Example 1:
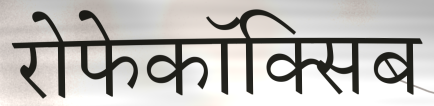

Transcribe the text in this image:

रोफेकॉक्सिब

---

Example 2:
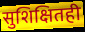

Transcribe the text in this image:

सुशिक्षितही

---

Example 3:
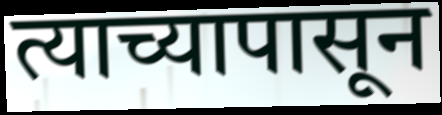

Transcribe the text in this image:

त्याच्यापासून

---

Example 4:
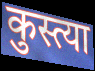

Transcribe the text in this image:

कुस्त्या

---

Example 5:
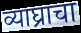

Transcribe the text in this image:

व्याघ्राचा